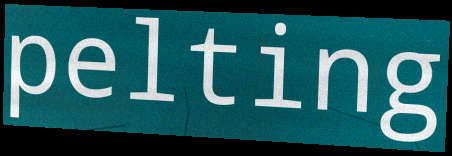
pelting